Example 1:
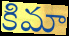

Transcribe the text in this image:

కిమా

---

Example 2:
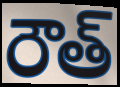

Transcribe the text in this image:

రౌత్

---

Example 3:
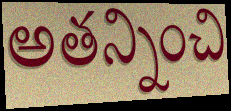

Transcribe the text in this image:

అతన్నించి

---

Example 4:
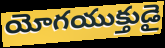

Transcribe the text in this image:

యోగయుక్తుడై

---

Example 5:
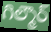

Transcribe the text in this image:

గిల్మౌర్